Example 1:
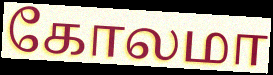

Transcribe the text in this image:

கோலமா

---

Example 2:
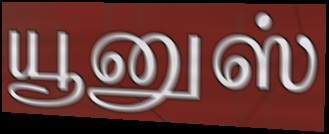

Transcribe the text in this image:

யூனுஸ்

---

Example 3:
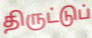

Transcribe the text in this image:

திருட்டுப்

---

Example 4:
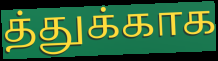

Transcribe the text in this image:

த்துக்காக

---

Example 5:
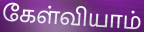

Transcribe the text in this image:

கேள்வியாம்